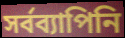
সর্বব্যাপিনি